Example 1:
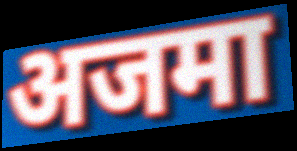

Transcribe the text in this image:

अजमा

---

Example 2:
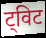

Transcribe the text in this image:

ट्विट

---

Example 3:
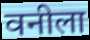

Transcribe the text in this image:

वनीला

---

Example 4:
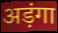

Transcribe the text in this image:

अड़ंगा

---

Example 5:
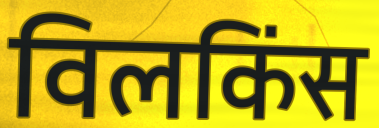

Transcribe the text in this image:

विलकिंस